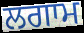
ਲਗਾਮ